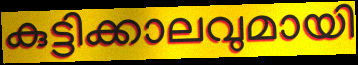
കുട്ടിക്കാലവുമായി